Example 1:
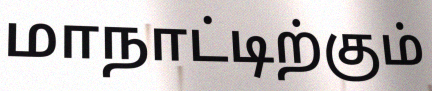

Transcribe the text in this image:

மாநாட்டிற்கும்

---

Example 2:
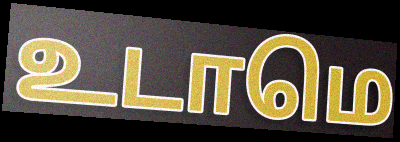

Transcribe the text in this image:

உடாமெ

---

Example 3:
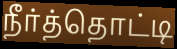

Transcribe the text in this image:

நீர்த்தொட்டி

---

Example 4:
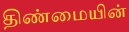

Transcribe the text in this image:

திண்மையின்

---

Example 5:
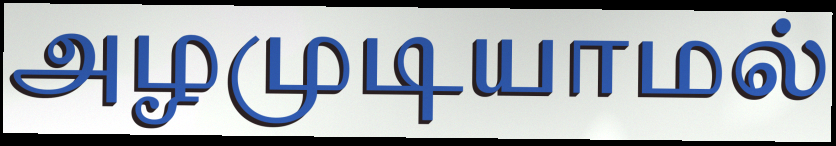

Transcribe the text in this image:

அழமுடியாமல்